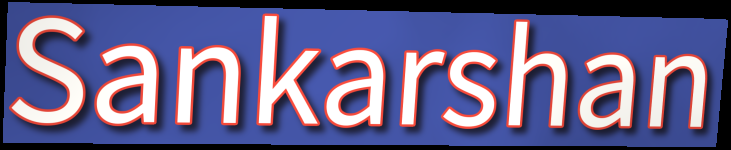
Sankarshan